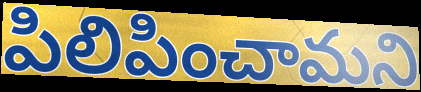
పిలిపించామని